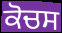
ਕੋਚਸ